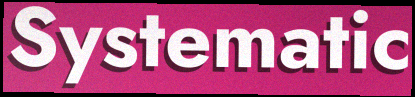
Systematic